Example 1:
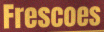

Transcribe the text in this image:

Frescoes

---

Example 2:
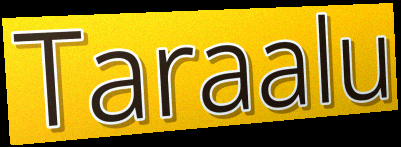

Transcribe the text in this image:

Taraalu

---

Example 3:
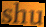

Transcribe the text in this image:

shu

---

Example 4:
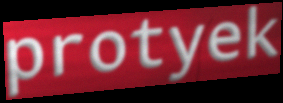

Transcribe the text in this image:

protyek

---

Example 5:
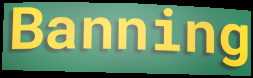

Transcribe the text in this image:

Banning